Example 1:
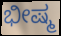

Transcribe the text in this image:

ಭೀಷ್ಮ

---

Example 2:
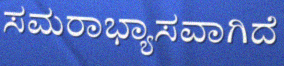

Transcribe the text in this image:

ಸಮರಾಭ್ಯಾಸವಾಗಿದೆ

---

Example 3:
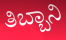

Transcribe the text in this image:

ತಿಬ್ಬಾನಿ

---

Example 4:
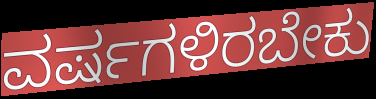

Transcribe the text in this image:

ವರ್ಷಗಳಿರಬೇಕು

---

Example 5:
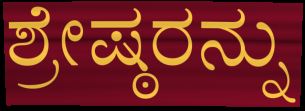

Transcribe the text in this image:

ಶ್ರೇಷ್ಠರನ್ನು